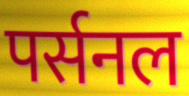
पर्सनल